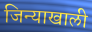
जिन्याखाली